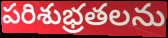
పరిశుభ్రతలను